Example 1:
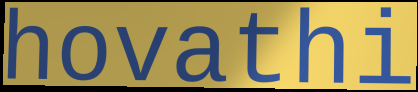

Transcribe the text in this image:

hovathi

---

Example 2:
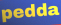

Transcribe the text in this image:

pedda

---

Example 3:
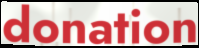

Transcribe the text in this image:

donation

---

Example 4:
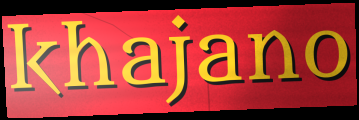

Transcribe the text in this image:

khajano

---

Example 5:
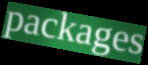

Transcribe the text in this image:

packages